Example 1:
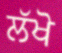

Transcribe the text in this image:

ਲੱਖੋ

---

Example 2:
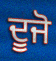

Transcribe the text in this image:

ਦੂਜੋ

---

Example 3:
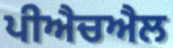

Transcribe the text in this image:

ਪੀਐਚਐਲ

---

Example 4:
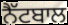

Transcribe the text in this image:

ਨੈੱਟਬਾਲ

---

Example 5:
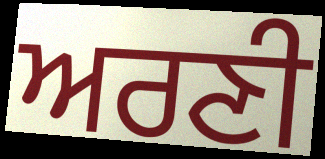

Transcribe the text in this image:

ਅਰਣੀ